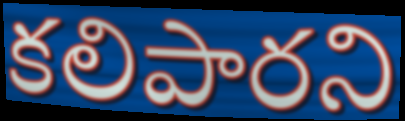
కలిపారని